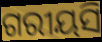
ଗରୀୟସି